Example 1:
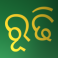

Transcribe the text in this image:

ରୂଢି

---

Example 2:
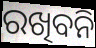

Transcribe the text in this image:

ରଖିବନି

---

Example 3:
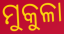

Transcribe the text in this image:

ମୁକୁଳା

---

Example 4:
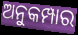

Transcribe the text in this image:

ଅନୁକମ୍ପାର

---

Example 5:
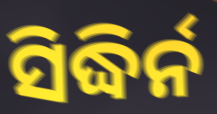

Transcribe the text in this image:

ସିଦ୍ଧିର୍ନ